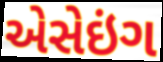
એસેઇંગ